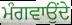
ਮੰਗਵਾਉਂਦੇ